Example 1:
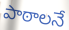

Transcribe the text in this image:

పాఠాలనే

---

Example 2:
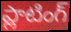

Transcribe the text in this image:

ప్లాటింగ్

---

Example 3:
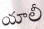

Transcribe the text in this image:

యాలీ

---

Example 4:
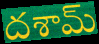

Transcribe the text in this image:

దశామ్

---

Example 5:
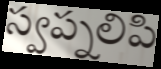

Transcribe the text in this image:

స్వప్నలిపి